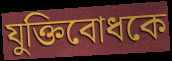
যুক্তিবোধকে